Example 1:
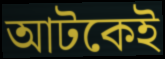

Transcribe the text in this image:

আটকেই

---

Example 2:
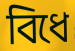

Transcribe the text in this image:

বিধে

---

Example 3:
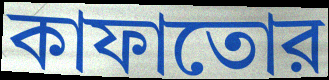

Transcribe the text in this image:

কাফাতোর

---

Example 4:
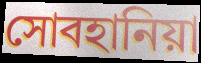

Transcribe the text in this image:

সোবহানিয়া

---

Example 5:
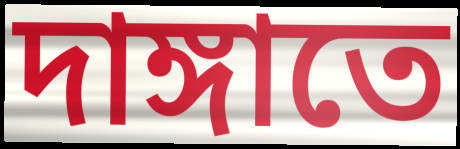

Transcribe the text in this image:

দাঙ্গাতে